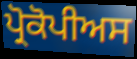
ਪ੍ਰੋਕੋਪੀਅਸ